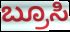
ಬ್ರೂಸಿ